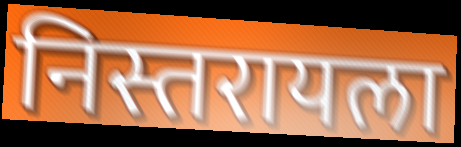
निस्तरायला